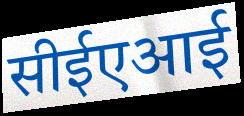
सीईएआई